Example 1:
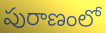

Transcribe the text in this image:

పురాణంలో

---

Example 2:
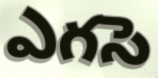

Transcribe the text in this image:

ఎగసె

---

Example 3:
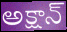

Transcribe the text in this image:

అక్షాన్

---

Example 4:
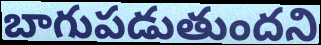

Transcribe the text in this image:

బాగుపడుతుందని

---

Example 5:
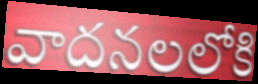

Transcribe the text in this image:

వాదనలలోకి